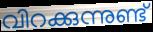
വിറക്കുന്നുണ്ട്